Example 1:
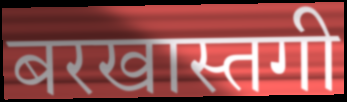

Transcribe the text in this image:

बरखास्तगी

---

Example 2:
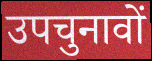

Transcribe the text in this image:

उपचुनावों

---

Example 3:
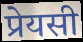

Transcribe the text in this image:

प्रेयसी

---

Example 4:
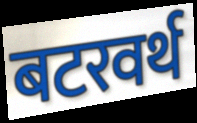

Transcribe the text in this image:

बटरवर्थ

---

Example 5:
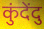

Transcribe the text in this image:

कुंदेंदु